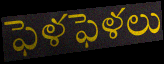
ఫెళఫెళలు